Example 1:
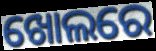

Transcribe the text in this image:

ଖୋଲରେ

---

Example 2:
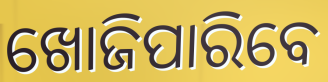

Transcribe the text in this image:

ଖୋଜିପାରିବେ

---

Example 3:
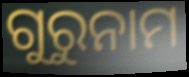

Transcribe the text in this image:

ଗୁରୁନାମ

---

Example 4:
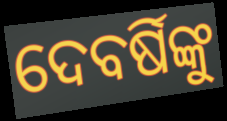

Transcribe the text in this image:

ଦେବର୍ଷିଙ୍କୁ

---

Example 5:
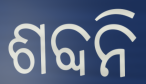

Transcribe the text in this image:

ଶବ୍ଦନି